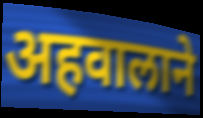
अहवालाने